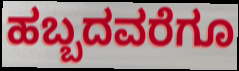
ಹಬ್ಬದವರೆಗೂ